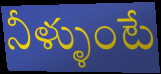
నీళ్ళుంటే